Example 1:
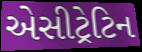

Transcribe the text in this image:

એસીટ્રેટિન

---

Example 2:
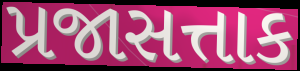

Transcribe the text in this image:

પ્રજાસત્તાક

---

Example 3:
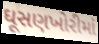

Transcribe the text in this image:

ઘૂસણખોરીમાં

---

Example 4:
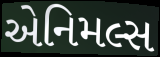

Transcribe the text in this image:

એનિમલ્સ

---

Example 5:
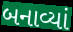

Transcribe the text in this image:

બનાવ્યાં